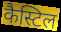
कैस्टिल